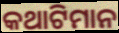
କଥାଟିମାନ